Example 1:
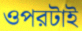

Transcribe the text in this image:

ওপরটাই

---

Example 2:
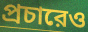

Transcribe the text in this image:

প্রচারেও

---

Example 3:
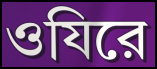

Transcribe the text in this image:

ওযিরে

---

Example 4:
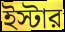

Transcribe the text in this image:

ইস্টার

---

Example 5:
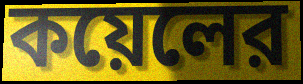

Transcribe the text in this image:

কয়েলের